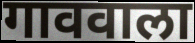
गाववाला